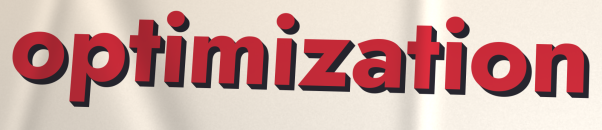
optimization